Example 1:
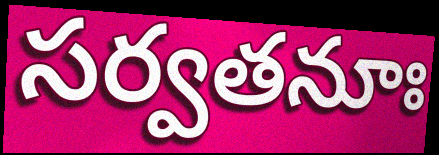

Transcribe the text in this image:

సర్వతనూః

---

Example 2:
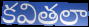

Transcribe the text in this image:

కవితలా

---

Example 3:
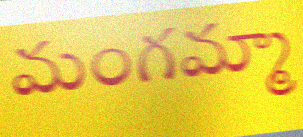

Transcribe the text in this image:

మంగమ్మా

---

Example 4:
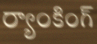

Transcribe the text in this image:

ర్యాంకింగ్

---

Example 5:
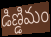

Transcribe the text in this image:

డిణ్డిమం